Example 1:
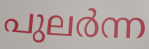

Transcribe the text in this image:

പുലർന്ന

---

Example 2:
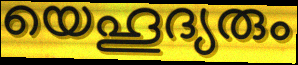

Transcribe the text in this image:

യെഹൂദ്യരും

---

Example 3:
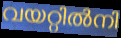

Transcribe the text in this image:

വയറ്റിൽനി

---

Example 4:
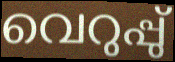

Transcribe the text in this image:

വെറുപ്പു്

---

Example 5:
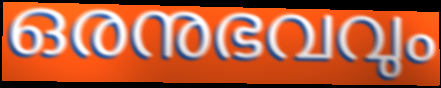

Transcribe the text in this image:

ഒരനുഭവവും